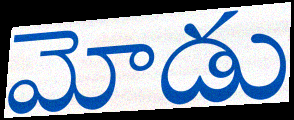
మోడు